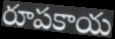
రూపకాయ